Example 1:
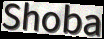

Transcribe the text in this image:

Shoba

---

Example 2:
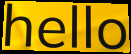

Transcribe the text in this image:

hello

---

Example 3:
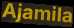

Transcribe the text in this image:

Ajamila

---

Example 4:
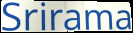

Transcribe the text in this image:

Srirama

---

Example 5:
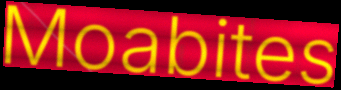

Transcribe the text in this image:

Moabites